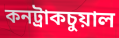
কনট্রাকচুয়াল